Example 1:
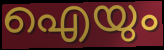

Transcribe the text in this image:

ഐയും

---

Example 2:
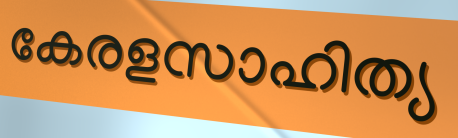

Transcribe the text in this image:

കേരളസാഹിത്യ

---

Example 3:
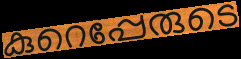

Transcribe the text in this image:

കുറെപ്പേരുടെ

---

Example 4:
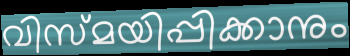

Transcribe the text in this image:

വിസ്മയിപ്പിക്കാനും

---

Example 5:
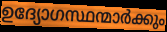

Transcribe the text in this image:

ഉദ്യോഗസ്ഥന്മാർക്കും